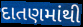
દાતણમાંથી